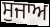
ਸੁਜਾਅ